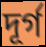
দূর্গ